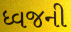
ધ્વજની